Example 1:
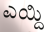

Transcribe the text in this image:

ಎಯ್ದಿ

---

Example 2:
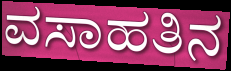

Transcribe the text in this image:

ವಸಾಹತಿನ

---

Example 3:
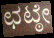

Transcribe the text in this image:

ಛಟ್ಠೇ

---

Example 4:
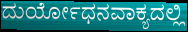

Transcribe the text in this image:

ದುರ್ಯೋಧನವಾಕ್ಯದಲ್ಲಿ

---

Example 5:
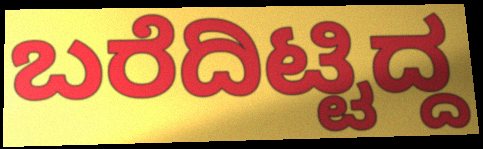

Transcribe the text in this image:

ಬರೆದಿಟ್ಟಿದ್ದ